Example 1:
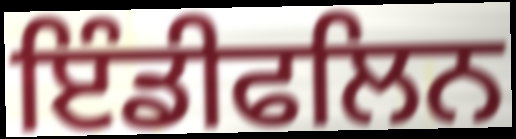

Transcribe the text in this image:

ਇੰਡੀਫਲਿਨ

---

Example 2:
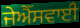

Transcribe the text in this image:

ਜੇਐੱਸਵਾਈ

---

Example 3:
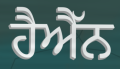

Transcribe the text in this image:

ਹੈਐੱਨ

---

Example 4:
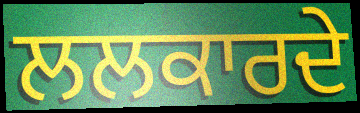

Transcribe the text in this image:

ਲਲਕਾਰਦੇ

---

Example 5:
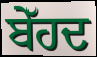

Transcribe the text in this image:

ਬੇੱਹਦ